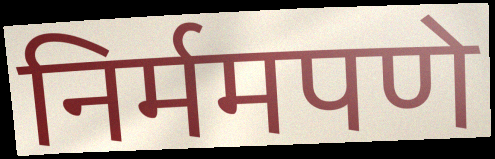
निर्ममपणे